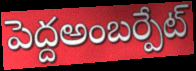
పెద్దఅంబర్పేట్